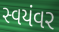
સ્વયંવર